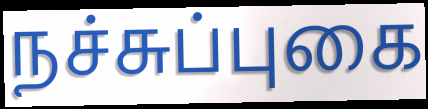
நச்சுப்புகை